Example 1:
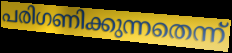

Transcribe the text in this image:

പരിഗണിക്കുന്നതെന്ന്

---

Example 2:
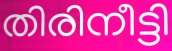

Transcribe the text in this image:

തിരിനീട്ടി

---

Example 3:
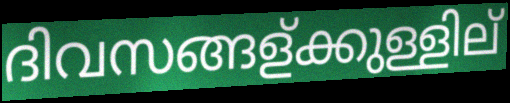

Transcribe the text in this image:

ദിവസങ്ങള്ക്കുള്ളില്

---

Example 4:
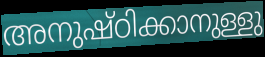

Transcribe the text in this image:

അനുഷ്ഠിക്കാനുള്ളു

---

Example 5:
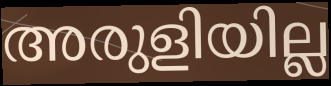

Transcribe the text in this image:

അരുളിയില്ല